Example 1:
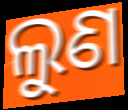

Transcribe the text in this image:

ଲୁଣ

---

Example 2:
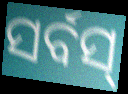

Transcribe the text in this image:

ସର୍ବସ୍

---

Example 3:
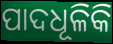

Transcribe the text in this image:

ପାଦଧୂଳିକି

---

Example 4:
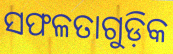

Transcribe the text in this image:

ସଫଳତାଗୁଡ଼ିକ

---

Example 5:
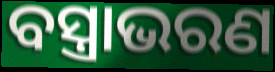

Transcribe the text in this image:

ବସ୍ତ୍ରାଭରଣ